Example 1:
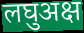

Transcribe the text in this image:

लघुअक्ष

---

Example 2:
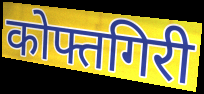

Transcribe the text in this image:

कोफ्तगिरी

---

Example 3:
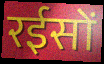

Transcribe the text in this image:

रईसों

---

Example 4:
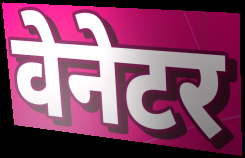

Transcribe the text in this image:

वेनेटर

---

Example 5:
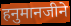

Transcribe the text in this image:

हनुमानजीने